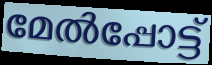
മേൽപ്പോട്ട്